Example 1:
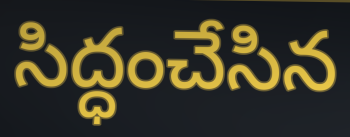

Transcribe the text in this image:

సిద్ధంచేసిన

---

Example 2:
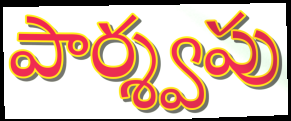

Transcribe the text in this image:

పార్శ్వపు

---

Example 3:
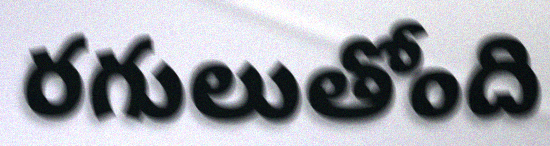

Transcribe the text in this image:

రగులుతోంది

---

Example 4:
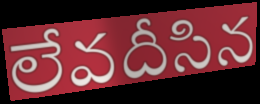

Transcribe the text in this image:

లేవదీసిన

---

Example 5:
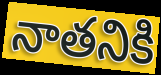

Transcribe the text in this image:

నాతనికి